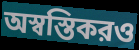
অস্বস্তিকরও